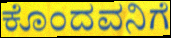
ಕೊಂದವನಿಗೆ